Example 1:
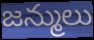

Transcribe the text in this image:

జన్ములు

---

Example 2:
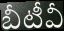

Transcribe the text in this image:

బీటీవీ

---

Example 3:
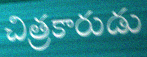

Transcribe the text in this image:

చిత్రకారుడు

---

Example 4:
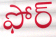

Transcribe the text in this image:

ఫోర్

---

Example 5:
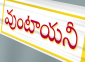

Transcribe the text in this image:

వుంటాయనీ